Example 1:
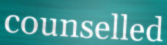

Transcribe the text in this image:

counselled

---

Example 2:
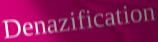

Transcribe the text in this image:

Denazification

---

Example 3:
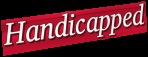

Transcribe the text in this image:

Handicapped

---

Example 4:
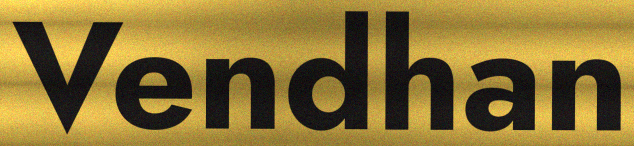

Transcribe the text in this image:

Vendhan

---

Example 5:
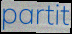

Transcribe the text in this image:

partit